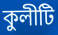
কুলীটি